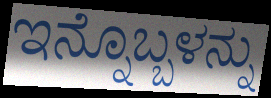
ಇನ್ನೊಬ್ಬಳನ್ನು